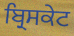
ਬ੍ਰਿਸਕੇਟ